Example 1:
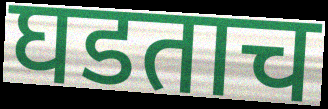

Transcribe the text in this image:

घडताच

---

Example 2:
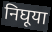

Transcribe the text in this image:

निघूया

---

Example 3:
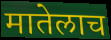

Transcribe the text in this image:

मातेलाच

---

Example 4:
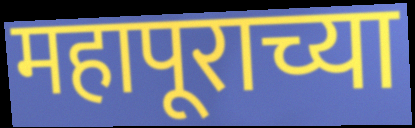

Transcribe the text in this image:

महापूराच्या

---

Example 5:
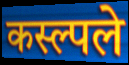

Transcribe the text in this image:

कस्ल्पले